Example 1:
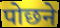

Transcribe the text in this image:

पोछने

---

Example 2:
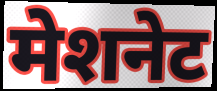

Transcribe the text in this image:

मेशनेट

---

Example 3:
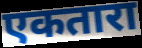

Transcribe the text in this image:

एकतारा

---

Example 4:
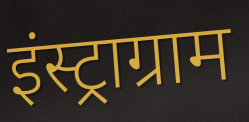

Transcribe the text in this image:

इंस्ट्राग्राम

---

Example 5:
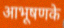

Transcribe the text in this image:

आभूषणके